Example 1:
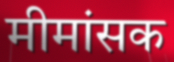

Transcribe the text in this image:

मीमांसक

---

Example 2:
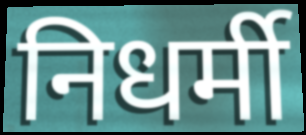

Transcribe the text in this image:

निधर्मी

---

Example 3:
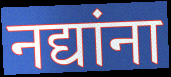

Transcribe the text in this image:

नद्यांना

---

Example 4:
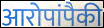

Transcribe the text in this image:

आरोपांपैकी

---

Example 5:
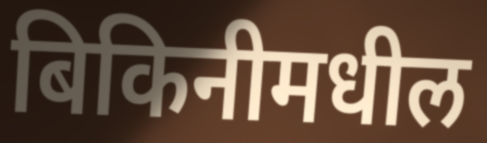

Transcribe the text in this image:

बिकिनीमधील